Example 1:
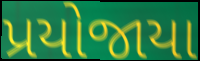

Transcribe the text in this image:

પ્રયોજાયા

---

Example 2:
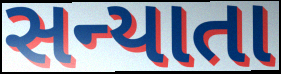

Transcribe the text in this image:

સન્યાતા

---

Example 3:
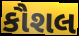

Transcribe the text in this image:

કૌશલ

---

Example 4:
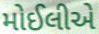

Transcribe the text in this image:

મોઈલીએ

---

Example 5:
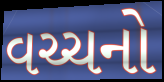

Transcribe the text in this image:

વચ્ચનો